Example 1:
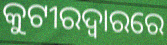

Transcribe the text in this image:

କୁଟୀରଦ୍ୱାରରେ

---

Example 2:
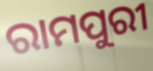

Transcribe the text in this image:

ରାମପୁରୀ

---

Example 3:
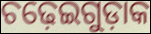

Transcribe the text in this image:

ଚଢ଼େଇଗୁଡ଼ାକ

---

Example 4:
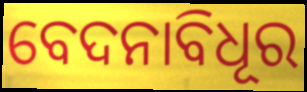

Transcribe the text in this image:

ବେଦନାବିଧୂର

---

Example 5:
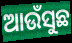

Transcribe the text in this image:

ଆଉଁସୁଛ